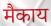
मैकाय